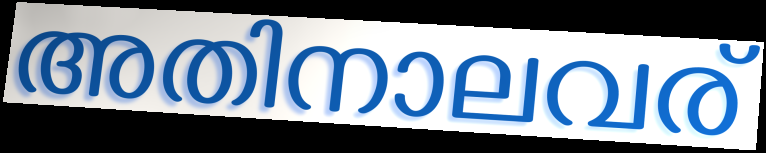
അതിനാലവര്